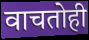
वाचतोही